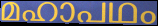
മഹാപഥം